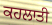
ਕਹਲਾਤੀ